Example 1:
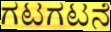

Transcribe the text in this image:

ಗಟಗಟನೆ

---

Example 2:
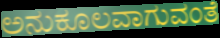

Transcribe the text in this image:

ಅನುಕೂಲವಾಗುವಂತೆ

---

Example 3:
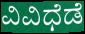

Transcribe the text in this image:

ವಿವಿಧೆಡೆ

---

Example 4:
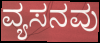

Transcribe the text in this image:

ವ್ಯಸನವು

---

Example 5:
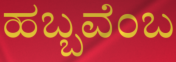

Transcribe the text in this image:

ಹಬ್ಬವೆಂಬ